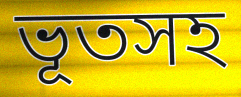
ভূতসহ